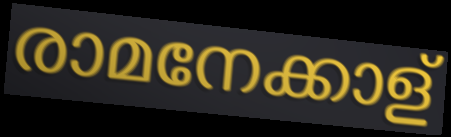
രാമനേക്കാള്